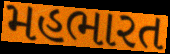
મહભારત